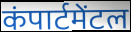
कंपार्टमेंटल